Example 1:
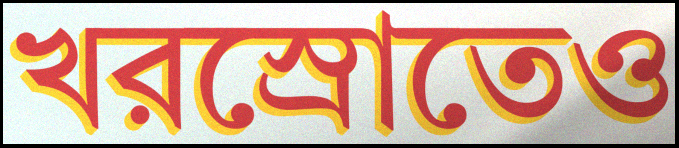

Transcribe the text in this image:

খরস্রোতেও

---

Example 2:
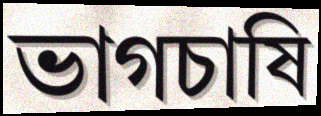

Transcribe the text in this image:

ভাগচাষি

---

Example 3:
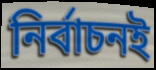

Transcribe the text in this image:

নির্বাচনই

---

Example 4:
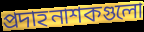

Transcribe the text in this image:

প্রদাহনাশকগুলো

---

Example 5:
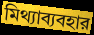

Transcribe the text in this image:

মিথ্যাব্যবহার